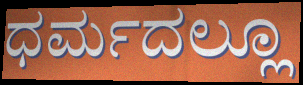
ಧರ್ಮದಲ್ಲೂ